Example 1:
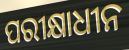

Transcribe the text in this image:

ପରୀକ୍ଷାଧୀନ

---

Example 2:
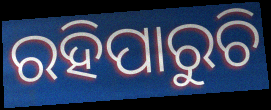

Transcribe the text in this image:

ରହିପାରୁଚି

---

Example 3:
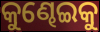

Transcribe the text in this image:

କୁଣ୍ଢେଇକୁ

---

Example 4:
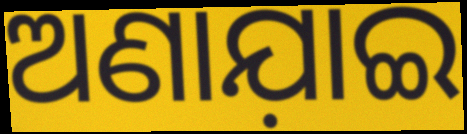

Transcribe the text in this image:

ଅଣାଯ଼ାଇ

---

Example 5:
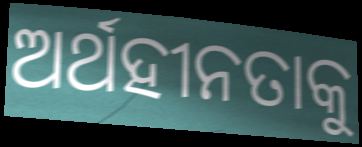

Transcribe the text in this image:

ଅର୍ଥହୀନତାକୁ